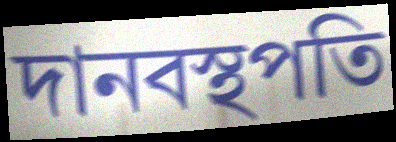
দানবস্থপতি